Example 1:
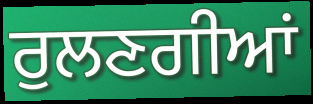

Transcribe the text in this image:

ਰੁਲਣਗੀਆਂ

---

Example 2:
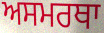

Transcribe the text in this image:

ਅਸਮਰਥਾ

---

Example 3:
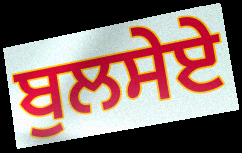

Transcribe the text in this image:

ਬੁਲਸੇਏ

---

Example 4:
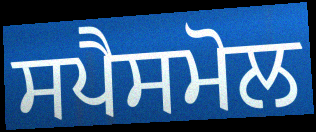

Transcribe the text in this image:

ਸਪੈਸਮੋਲ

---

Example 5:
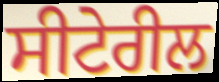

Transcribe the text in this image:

ਸੀਟੇਰੀਲ